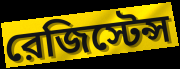
রেজিস্টেন্স